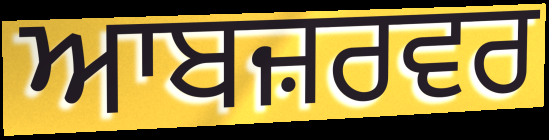
ਆਬਜ਼ਰਵਰ